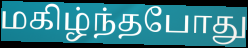
மகிழ்ந்தபோது